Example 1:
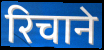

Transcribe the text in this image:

रिचाने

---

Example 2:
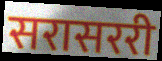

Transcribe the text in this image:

सरासररी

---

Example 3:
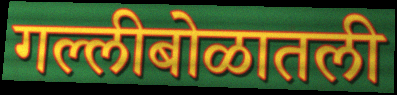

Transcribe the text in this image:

गल्लीबोळातली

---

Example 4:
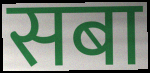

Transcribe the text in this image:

सबा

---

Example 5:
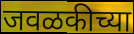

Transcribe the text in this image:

जवळकीच्या